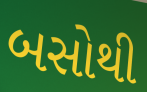
બસોથી